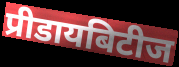
प्रीडायबिटीज